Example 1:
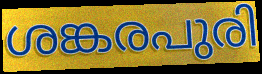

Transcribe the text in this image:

ശങ്കരപുരി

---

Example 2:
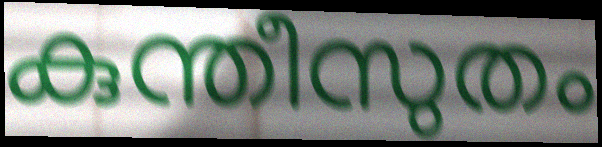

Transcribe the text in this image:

കുന്തീസുതം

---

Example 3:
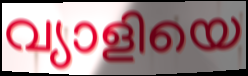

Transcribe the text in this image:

വ്യാളിയെ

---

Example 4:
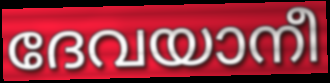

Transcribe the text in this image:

ദേവയാനീ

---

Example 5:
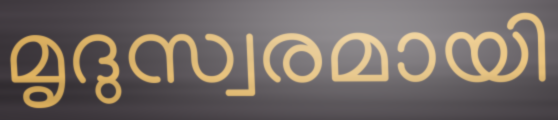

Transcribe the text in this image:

മൃദുസ്വരമായി